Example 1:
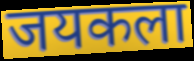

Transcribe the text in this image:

जयकला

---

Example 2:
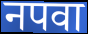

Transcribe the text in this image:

नपवा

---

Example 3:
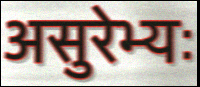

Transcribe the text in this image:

असुरेभ्यः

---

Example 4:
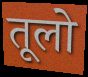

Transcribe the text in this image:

तूलो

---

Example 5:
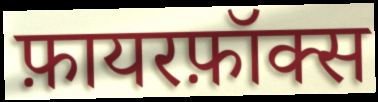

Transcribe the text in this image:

फ़ायरफ़ॉक्स